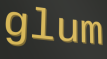
glum